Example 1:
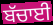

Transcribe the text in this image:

ਬੱਚਾਈ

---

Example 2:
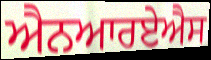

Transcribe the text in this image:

ਐਨਆਰਏਐਸ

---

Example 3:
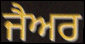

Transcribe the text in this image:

ਜੈਅਰ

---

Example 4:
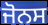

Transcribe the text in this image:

ਜੋਨਸ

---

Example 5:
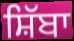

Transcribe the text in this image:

ਸ਼ਿੱਬਾ